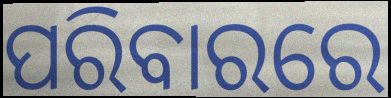
ପରିବାରରେ